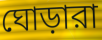
ঘোড়ারা